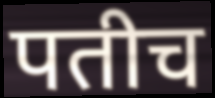
पतीच